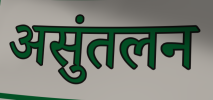
असुंतलन